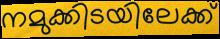
നമുക്കിടയിലേക്ക്